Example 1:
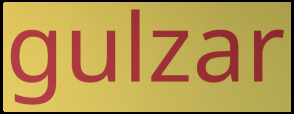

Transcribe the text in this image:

gulzar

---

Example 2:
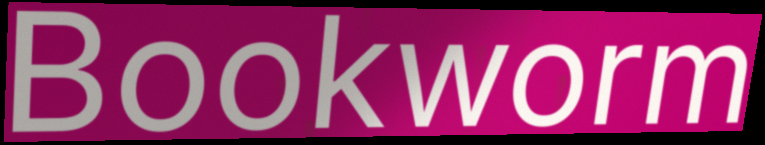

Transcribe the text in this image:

Bookworm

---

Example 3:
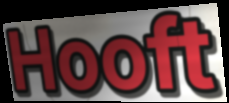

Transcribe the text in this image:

Hooft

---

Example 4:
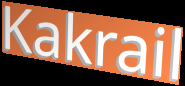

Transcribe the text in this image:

Kakrail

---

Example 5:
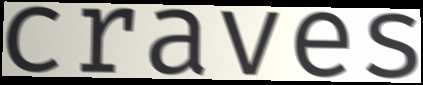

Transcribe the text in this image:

craves